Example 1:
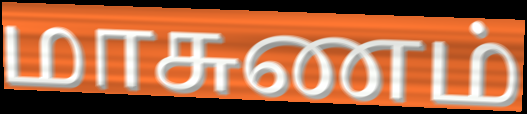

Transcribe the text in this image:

மாசுணம்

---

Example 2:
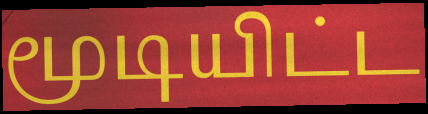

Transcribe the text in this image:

மூடியிட்ட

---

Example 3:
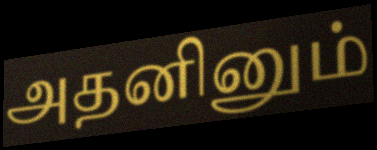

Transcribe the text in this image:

அதனினும்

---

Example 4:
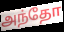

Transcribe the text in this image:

அந்தோ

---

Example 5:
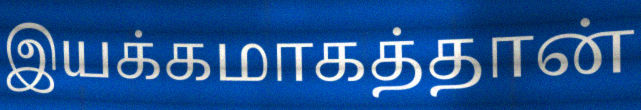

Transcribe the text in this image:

இயக்கமாகத்தான்